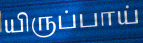
யிருப்பாய்